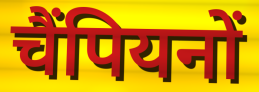
चैंपियनों